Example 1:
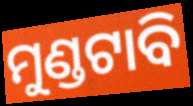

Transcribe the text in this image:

ମୁଣ୍ଡଟାବି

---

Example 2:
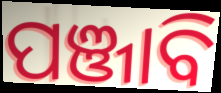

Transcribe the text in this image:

ପଞ୍ଜାବି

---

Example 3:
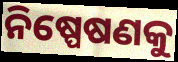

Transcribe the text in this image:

ନିଷ୍ପେଷଣକୁ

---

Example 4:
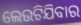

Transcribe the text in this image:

ଲେଉଟିଯିବାର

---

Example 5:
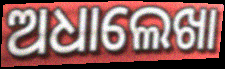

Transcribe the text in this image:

ଅଧାଲେଖା